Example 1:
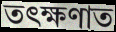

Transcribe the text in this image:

তৎক্ষণাত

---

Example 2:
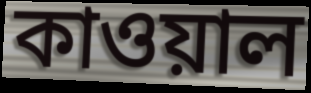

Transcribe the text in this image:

কাওয়াল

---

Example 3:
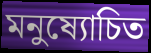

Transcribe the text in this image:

মনুষ্যোচিত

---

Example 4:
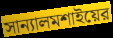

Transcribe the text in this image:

সান্যালমশাইয়ের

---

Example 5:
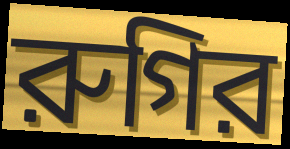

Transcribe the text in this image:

রুগির